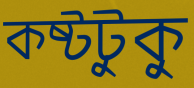
কষ্টটুকু